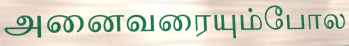
அனைவரையும்போல